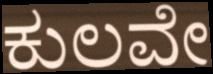
ಕುಲವೇ